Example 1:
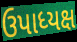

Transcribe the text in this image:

ઉપાધ્યક્ષ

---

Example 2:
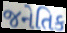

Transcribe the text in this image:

જનેતિક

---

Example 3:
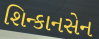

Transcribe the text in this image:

શિન્કાનસેન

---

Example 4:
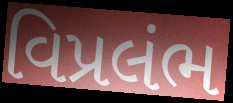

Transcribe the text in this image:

વિપ્રલંભ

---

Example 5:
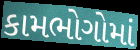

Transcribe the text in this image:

કામભોગોમાં